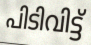
പിടിവിട്ട്